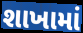
શાખામાં